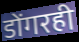
डोंगरही